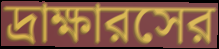
দ্রাক্ষারসের